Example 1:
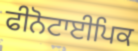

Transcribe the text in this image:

ਫੀਨੋਟਾਈਪਿਕ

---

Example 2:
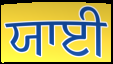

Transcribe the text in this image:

ਯਾਈ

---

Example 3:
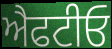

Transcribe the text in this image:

ਐਫਟੀਓ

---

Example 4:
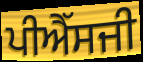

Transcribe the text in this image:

ਪੀਐੱਸਜੀ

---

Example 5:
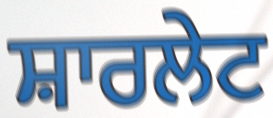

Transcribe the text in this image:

ਸ਼ਾਰਲੇਟ